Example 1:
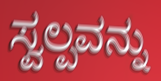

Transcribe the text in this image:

ಸ್ವಲ್ಪವನ್ನು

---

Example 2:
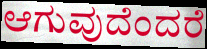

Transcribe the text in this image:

ಆಗುವುದೆಂದರೆ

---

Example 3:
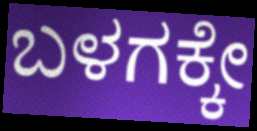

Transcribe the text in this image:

ಬಳಗಕ್ಕೇ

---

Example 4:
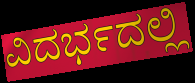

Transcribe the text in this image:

ವಿದರ್ಭದಲ್ಲಿ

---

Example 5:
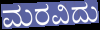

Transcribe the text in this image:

ಮರವಿದು